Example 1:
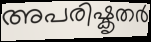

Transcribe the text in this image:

അപരിഷ്കൃതർ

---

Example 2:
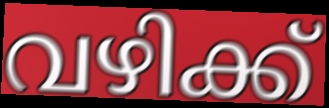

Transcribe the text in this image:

വഴിക്ക്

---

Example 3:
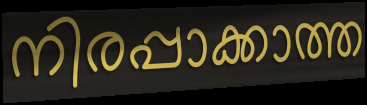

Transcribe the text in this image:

നിരപ്പാക്കാത്ത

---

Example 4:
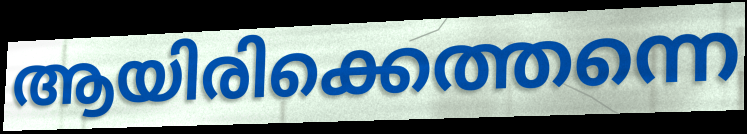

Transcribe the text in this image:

ആയിരിക്കെത്തന്നെ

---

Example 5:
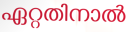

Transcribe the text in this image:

ഏറ്റതിനാൽ